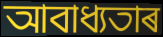
আবাধ্যতাৰ